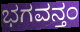
ಭಗವನ್ತಂ